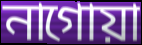
নাগোয়া